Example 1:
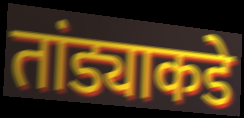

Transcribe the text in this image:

तांड्याकडे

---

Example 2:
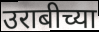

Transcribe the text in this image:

उराबीच्या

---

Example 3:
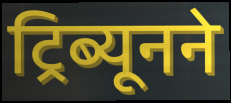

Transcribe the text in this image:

ट्रिब्यूनने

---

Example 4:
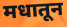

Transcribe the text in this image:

मधातून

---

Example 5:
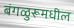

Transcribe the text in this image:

बंगळुरूमधील